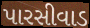
પારસીવાડ